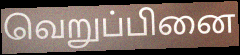
வெறுப்பினை